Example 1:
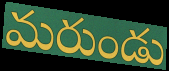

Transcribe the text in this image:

మరుండు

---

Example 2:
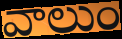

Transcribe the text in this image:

వాలుం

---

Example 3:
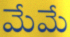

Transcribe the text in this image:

మేమే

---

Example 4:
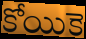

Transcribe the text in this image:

కోయికె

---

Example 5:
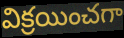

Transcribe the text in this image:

విక్రయించగా